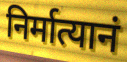
निर्मात्यानं